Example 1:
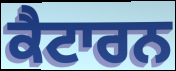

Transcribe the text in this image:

ਕੈਟਾਰਨ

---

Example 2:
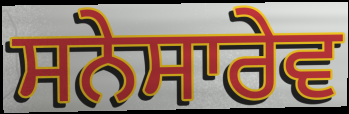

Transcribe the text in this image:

ਸਨੇਸਾਰੇਵ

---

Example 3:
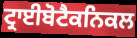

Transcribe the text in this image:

ਟ੍ਰਾਈਬੋਟੈਕਨਿਕਲ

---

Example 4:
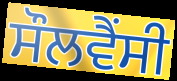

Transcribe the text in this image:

ਸੌਲਵੈਂਸੀ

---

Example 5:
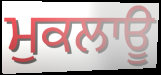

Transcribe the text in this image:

ਮੁਕਲਾਊ